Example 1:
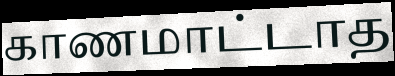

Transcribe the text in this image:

காணமாட்டாத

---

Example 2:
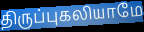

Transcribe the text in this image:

திருப்புகலியாமே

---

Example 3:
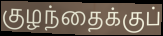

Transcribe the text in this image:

குழந்தைக்குப்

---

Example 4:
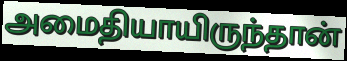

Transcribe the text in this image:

அமைதியாயிருந்தான்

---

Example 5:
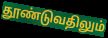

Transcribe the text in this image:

தூண்டுவதிலும்